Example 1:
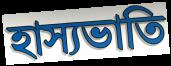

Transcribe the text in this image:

হাস্যভাতি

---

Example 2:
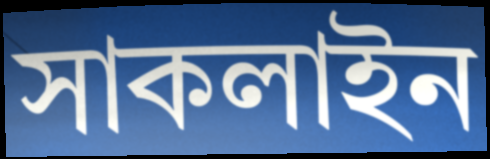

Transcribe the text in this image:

সাকলাইন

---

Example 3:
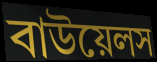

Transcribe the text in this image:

বাউয়েলস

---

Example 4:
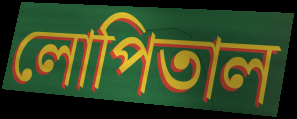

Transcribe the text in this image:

লোপিতাল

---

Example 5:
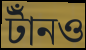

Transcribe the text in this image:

টাঁনও